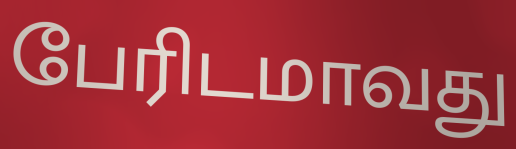
பேரிடமாவது